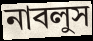
নাবলুস